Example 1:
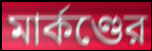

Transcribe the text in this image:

মার্কণ্ডের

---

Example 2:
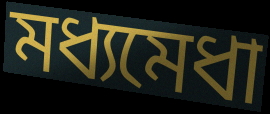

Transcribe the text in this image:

মধ্যমেধা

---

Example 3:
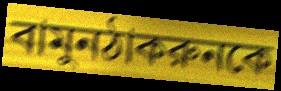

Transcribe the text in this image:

বামুনঠাকরুনকে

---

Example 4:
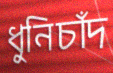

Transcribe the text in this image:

ধুনিচাঁদ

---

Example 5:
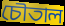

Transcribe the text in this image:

চৌতাল